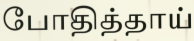
போதித்தாய்